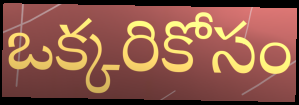
ఒక్కరికోసం